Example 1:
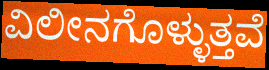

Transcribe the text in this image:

ವಿಲೀನಗೊಳ್ಳುತ್ತವೆ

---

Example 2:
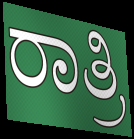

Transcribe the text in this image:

ರಾತ್ರಿ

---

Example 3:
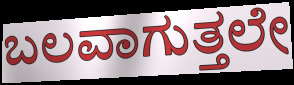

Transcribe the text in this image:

ಬಲವಾಗುತ್ತಲೇ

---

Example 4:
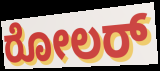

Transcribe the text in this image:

ರೋಲರ್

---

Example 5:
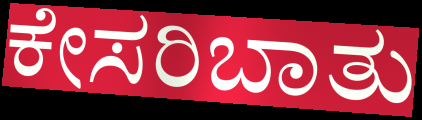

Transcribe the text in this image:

ಕೇಸರಿಬಾತು